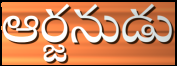
ఆర్జనుడు